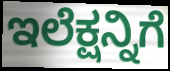
ಇಲೆಕ್ಷನ್ನಿಗೆ